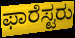
ಫಾರೆಸ್ಟರು